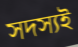
সদস্যই